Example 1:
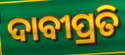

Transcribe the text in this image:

ଦାବୀପ୍ରତି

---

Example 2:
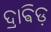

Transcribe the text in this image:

ଦ୍ରାଵିଡ଼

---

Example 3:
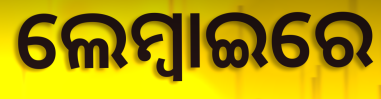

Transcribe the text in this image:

ଲେମ୍ବାଇରେ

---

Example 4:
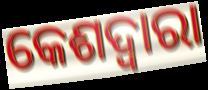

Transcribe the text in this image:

କେଶଦ୍ବାରା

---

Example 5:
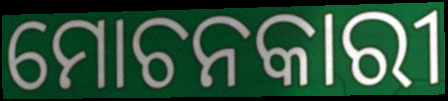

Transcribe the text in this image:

ମୋଚନକାରୀ